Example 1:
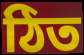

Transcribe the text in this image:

ঠিত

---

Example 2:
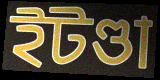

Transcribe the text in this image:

ইটণ্ডা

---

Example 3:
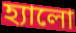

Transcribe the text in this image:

হ্যালো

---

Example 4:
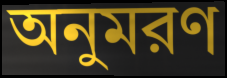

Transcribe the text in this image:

অনুমরণ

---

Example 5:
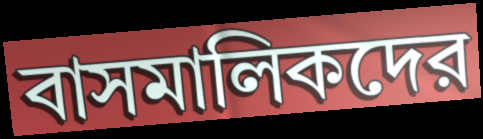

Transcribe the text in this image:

বাসমালিকদের